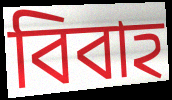
বিবাহ